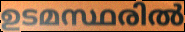
ഉടമസ്ഥരിൽ